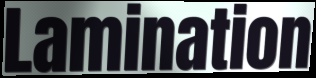
Lamination